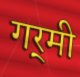
गर्मी